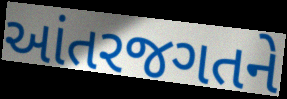
આંતરજગતને